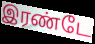
இரண்டே